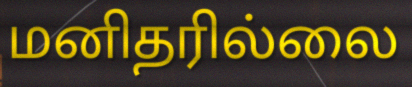
மனிதரில்லை